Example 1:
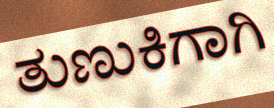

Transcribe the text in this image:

ತುಣುಕಿಗಾಗಿ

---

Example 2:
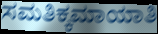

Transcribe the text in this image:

ಸಮತಿಕ್ಕಮಾಯಾತಿ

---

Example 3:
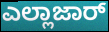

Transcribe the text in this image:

ಎಲ್ಲಾಜಾರ್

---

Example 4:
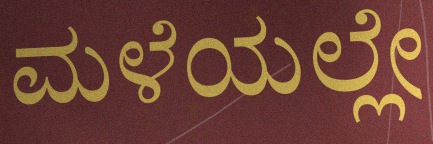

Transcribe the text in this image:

ಮಳೆಯಲ್ಲೇ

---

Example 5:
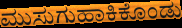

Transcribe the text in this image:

ಮುಸುಗುಹಾಕಿಕೊಂಡು